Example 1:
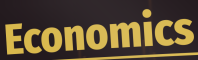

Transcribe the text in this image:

Economics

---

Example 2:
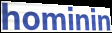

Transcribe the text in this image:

hominin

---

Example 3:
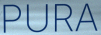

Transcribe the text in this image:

PURA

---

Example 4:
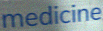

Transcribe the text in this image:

medicine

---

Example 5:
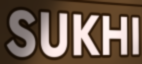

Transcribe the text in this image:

SUKHI